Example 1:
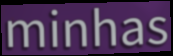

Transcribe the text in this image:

minhas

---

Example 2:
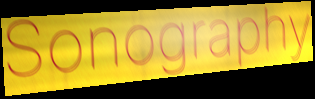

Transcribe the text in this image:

Sonography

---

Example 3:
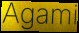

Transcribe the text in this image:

Agami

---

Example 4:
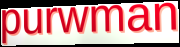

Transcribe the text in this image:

purwman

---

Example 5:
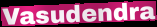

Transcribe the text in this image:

Vasudendra